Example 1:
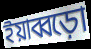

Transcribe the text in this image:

ইয়াব্বড়ো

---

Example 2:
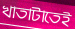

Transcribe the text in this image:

খাতাটাতেই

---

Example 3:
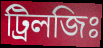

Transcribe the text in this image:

ট্রিলজিঃ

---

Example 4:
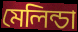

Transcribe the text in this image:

মেলিন্ডা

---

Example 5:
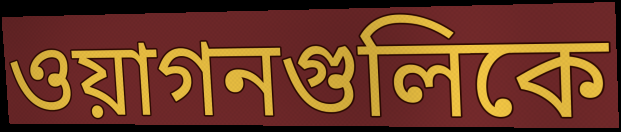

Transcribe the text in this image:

ওয়াগনগুলিকে